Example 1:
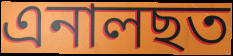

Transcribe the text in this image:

এনালছত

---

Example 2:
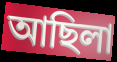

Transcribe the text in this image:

আছিলা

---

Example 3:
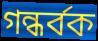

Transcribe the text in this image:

গন্ধৰ্বক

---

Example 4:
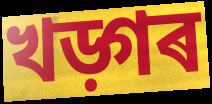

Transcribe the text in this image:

খড়্গৰ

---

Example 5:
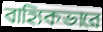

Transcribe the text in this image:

বাহ্যিকভাৱে